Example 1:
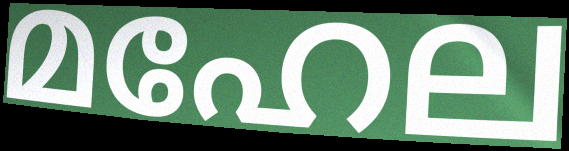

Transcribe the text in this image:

മഹേല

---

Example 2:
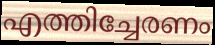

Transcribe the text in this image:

എത്തിച്ചേരണം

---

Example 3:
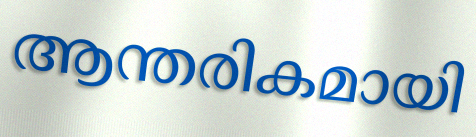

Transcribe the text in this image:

ആന്തരികമായി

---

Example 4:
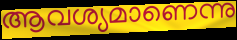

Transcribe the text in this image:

ആവശ്യമാണെന്നു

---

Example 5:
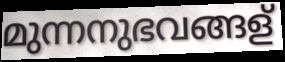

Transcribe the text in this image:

മുന്നനുഭവങ്ങള്